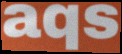
aqs